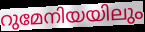
റുമേനിയയിലും